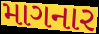
માગનાર